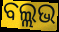
ବଲ୍ଲଭ